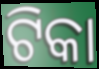
ଟିକା